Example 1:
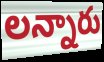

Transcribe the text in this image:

లన్నారు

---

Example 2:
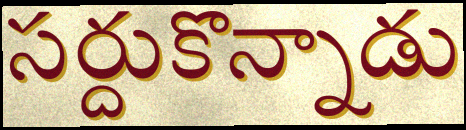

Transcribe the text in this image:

సర్దుకొన్నాడు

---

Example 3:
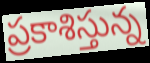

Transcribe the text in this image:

ప్రకాశిస్తున్న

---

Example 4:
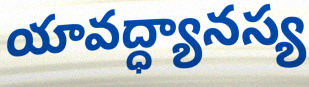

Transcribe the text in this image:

యావద్ధ్యానస్య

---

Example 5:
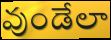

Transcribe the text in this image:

వుండేలా